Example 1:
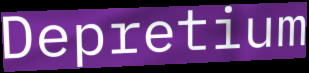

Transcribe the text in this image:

Depretium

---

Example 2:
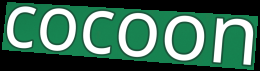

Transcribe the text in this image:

cocoon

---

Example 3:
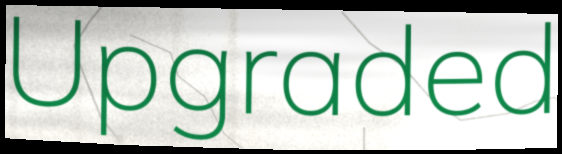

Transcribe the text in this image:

Upgraded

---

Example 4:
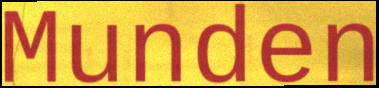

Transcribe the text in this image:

Munden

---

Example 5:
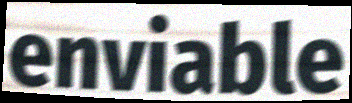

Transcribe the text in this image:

enviable